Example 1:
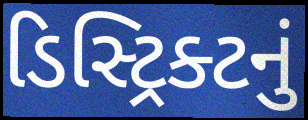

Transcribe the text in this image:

ડિસ્ટ્રિક્ટનું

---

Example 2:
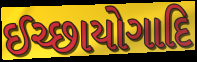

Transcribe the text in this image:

ઈચ્છાયોગાદિ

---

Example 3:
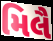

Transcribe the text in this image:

મિલૈ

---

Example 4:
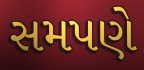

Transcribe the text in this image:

સમપણે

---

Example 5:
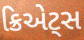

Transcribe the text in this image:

ક્રિએટ્સ